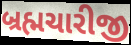
બ્રહ્મચારીજી